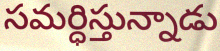
సమర్ధిస్తున్నాడు